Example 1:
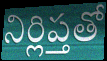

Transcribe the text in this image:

నిర్లిప్తతో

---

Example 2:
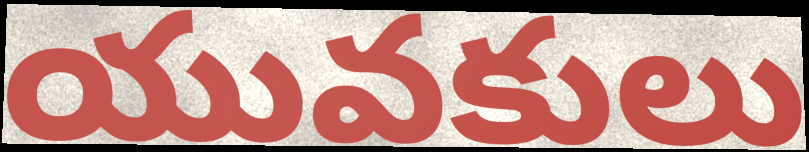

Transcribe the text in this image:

యువకులు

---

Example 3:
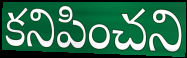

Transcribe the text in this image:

కనిపించని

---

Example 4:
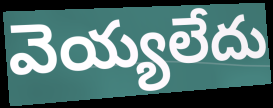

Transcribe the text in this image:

వెయ్యలేదు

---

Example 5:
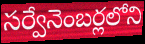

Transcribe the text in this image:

సర్వేనెంబర్లలోని